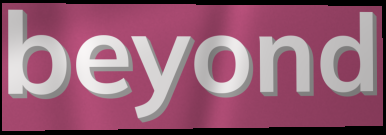
beyond